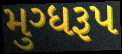
મુગ્ધરૂપ